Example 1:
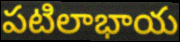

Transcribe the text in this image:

పటిలాభాయ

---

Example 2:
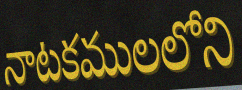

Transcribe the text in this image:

నాటకములలోని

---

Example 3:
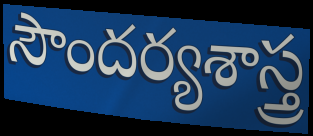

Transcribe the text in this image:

సౌందర్యశాస్త్ర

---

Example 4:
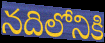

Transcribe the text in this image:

నదిలోనికి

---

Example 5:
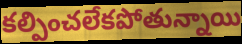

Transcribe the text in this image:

కల్పించలేకపోతున్నాయి